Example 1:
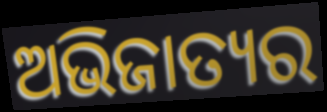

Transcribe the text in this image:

ଅଭିଜାତ୍ୟର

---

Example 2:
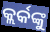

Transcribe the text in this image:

କ୍ଲର୍କଙ୍କୁ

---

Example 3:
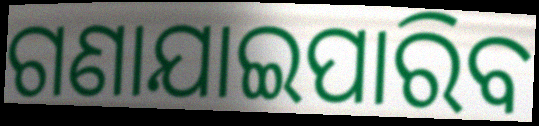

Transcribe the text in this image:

ଗଣାଯାଇପାରିବ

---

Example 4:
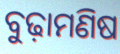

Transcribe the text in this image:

ବୁଢ଼ାମଣିଷ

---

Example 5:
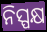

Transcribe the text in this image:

ନିସ୍ପକ୍ଷ